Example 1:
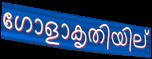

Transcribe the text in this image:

ഗോളാകൃതിയില്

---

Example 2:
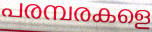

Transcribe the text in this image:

പരമ്പരകളെ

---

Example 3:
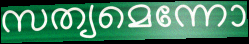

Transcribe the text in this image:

സത്യമെന്നോ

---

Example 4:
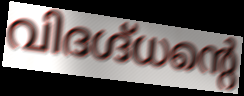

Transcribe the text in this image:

വിദഗ്ദ്ധന്റെ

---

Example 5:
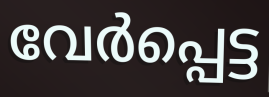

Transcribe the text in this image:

വേർപ്പെട്ട